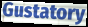
Gustatory